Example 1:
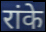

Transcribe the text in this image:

रांके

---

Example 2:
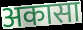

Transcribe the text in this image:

अकासा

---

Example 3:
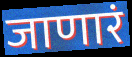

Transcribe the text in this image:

जाणारं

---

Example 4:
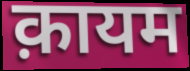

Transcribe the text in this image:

क़ायम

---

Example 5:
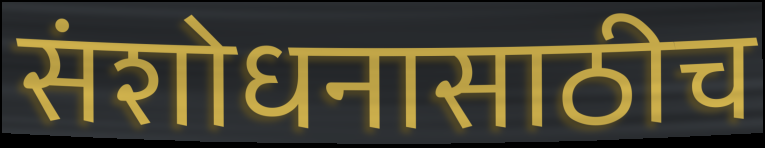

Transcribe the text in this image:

संशोधनासाठीच